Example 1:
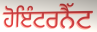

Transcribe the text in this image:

ਹੋਇੰਟਰਨੈੱਟ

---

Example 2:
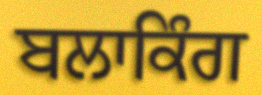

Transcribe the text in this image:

ਬਲਾਕਿੰਗ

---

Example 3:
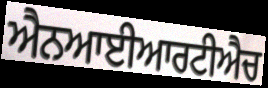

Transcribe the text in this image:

ਐਨਆਈਆਰਟੀਐਚ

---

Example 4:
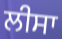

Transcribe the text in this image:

ਲੀਸਾ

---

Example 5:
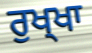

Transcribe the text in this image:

ਰੁਖ੍ਖਾ